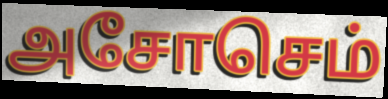
அசோசெம்